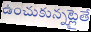
ఉంచుకున్నట్లైతే